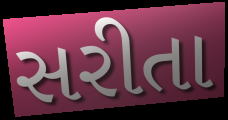
સરીતા